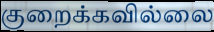
குறைக்கவில்லை